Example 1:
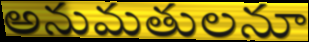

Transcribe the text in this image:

అనుమతులనూ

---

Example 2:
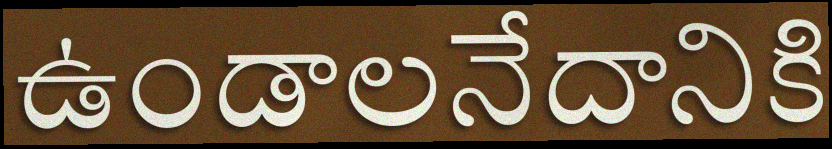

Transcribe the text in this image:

ఉండాలనేదానికి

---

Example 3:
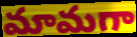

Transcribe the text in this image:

మామగా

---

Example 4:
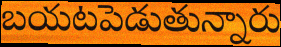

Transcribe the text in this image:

బయటపెడుతున్నారు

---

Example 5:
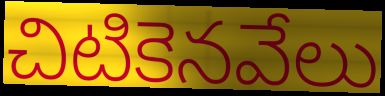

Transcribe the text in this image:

చిటికెనవేలు